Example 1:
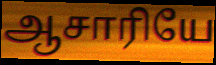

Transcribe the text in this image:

ஆசாரியே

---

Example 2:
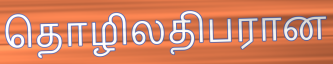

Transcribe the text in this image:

தொழிலதிபரான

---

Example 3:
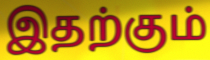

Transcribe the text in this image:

இதற்கும்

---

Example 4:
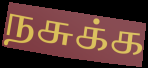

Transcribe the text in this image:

நசுக்க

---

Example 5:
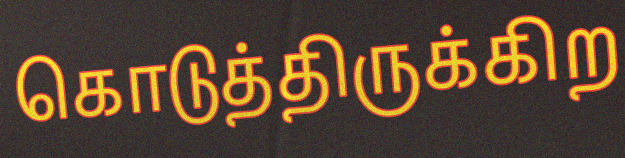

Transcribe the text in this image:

கொடுத்திருக்கிற